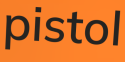
pistol